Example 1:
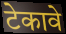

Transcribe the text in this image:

टेकावे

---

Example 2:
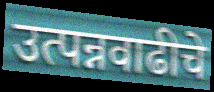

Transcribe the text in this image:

उत्पन्नवाढीचे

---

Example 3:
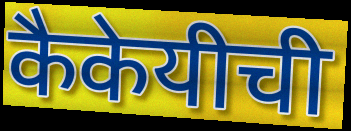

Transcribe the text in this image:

कैकेयीची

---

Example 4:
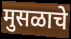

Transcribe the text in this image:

मुसळाचे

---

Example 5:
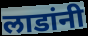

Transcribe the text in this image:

लाडांनी